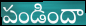
పండిందా